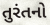
તુરંતનો